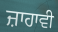
ਜ਼ਾਹਾਵੀ